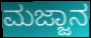
ಮಜ್ಜಾನ